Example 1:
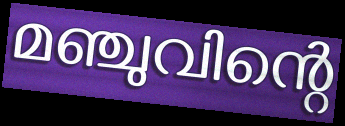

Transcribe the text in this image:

മഞ്ചുവിന്റെ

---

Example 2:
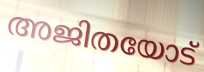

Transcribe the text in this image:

അജിതയോട്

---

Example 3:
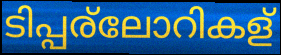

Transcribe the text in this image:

ടിപ്പര്ലോറികള്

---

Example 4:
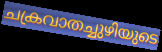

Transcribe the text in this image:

ചക്രവാതച്ചുഴിയുടെ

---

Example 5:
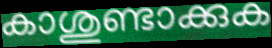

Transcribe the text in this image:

കാശുണ്ടാക്കുക